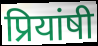
प्रियांषी